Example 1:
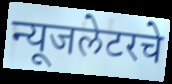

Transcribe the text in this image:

न्यूजलेटरचे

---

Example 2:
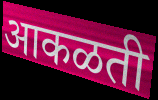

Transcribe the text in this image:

आकळती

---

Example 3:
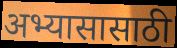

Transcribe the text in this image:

अभ्यासासाठी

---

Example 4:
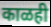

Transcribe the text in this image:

काळही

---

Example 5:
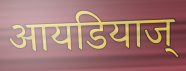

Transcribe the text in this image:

आयडियाज्